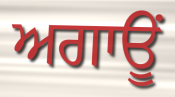
ਅਗਾਊਂ